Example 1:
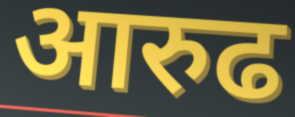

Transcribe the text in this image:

आरुढ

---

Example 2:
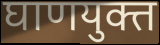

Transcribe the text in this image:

घाणयुक्त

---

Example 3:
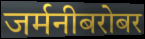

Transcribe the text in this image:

जर्मनीबरोबर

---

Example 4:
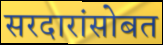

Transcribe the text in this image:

सरदारांसोबत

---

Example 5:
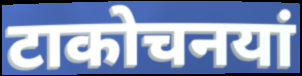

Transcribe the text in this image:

टाकोचनयां